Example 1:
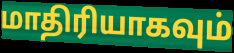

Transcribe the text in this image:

மாதிரியாகவும்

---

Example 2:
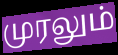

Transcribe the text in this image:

முரலும்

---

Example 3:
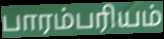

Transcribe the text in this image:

பாரம்பரியம்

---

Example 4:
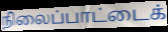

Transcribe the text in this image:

நிலைப்பாட்டைக்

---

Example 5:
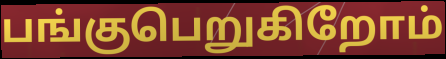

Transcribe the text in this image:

பங்குபெறுகிறோம்